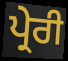
ਪ੍ਰੇਰੀ